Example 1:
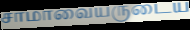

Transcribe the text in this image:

சாமாவையருடைய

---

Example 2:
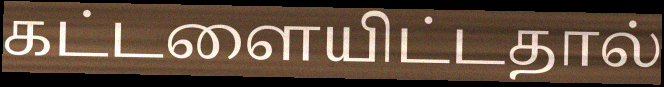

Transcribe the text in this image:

கட்டளையிட்டதால்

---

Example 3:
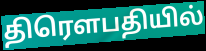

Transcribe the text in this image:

திரௌபதியில்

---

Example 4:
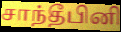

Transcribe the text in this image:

சாந்தீபினி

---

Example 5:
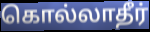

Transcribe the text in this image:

கொல்லாதீர்